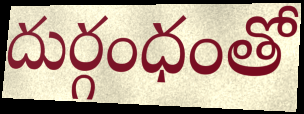
దుర్గంధంతో